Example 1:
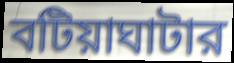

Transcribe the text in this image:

বটিয়াঘাটার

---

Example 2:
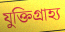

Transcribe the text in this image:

যুক্তিগ্রাহ্য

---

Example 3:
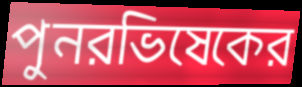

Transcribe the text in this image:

পুনরভিষেকের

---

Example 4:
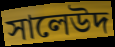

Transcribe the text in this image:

সালেউদ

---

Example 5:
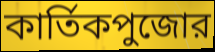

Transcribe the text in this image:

কার্তিকপুজোর